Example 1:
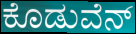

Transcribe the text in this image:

ಕೊಡುವೆನ್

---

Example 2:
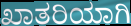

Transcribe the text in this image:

ಖಾತರಿಯಾಗಿ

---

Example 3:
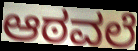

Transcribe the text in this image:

ಆಠವಲೆ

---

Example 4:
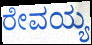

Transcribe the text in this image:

ರೇವಯ್ಯ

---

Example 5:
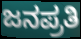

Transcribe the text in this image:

ಜನಪ್ರತಿ